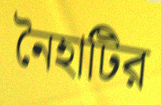
নৈহাটির